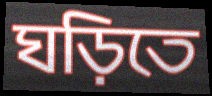
ঘড়িতে